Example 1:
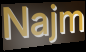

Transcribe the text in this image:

Najm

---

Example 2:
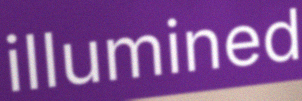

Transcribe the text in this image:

illumined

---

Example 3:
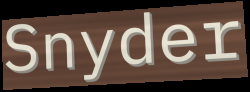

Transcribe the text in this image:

Snyder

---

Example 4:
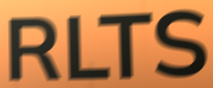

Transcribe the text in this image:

RLTS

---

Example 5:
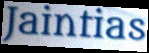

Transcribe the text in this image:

Jaintias